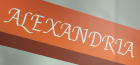
ALEXANDRIA